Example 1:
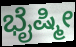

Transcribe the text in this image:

ಭೈಷ್ಮೀ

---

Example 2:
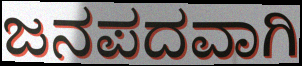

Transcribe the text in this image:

ಜನಪದವಾಗಿ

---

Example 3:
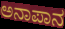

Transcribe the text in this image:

ಅನಾಪಾನ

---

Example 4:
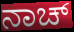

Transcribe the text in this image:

ನಾಚ್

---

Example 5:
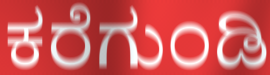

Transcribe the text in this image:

ಕರೆಗುಂಡಿ